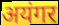
अयंगर